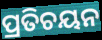
ପ୍ରତିଚୟନ